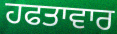
ਹਫਤਾਵਾਰ